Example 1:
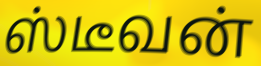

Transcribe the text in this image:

ஸ்டீவன்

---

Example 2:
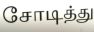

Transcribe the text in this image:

சோடித்து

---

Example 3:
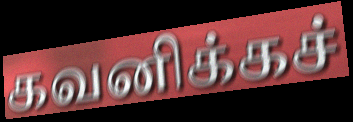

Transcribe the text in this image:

கவனிக்கச்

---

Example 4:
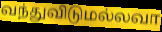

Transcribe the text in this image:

வந்துவிடுமல்லவா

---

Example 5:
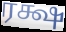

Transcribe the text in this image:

ரக்ஷ